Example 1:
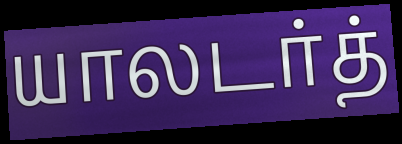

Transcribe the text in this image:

யாலடர்த்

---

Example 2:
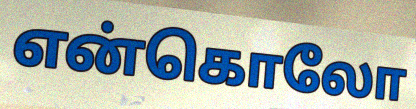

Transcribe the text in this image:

என்கொலோ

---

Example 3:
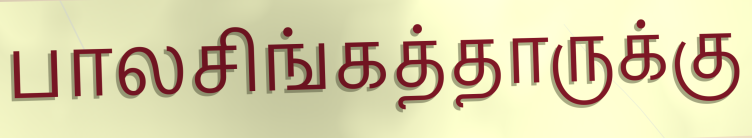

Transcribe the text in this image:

பாலசிங்கத்தாருக்கு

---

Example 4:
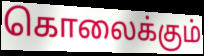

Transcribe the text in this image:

கொலைக்கும்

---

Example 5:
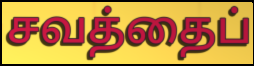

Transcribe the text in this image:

சவத்தைப்